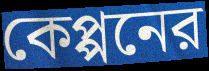
কেপ্পনের